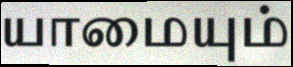
யாமையும்